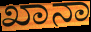
ಖಾನಾ